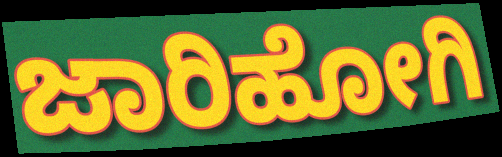
ಜಾರಿಹೋಗಿ